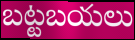
బట్టబయలు